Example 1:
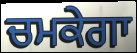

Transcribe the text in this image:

ਚਮਕੇਗਾ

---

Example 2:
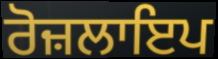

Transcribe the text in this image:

ਰੋਜ਼ਲਾਇਪ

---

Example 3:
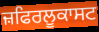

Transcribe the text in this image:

ਜ਼ਫਿਰਲੂਕਾਸਟ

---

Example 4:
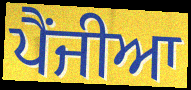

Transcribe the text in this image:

ਪੈਂਜੀਆ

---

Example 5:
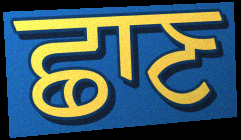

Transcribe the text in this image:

ਛਾਣ